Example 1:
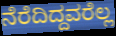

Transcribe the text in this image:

ನೆರೆದಿದ್ದವರೆಲ್ಲ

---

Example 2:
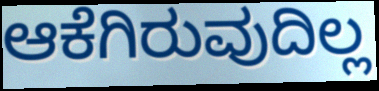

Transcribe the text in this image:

ಆಕೆಗಿರುವುದಿಲ್ಲ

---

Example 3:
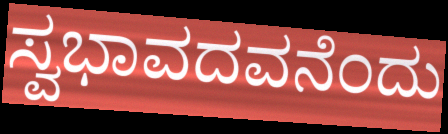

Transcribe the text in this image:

ಸ್ವಭಾವದವನೆಂದು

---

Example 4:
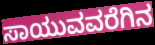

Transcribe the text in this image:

ಸಾಯುವವರೆಗಿನ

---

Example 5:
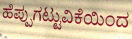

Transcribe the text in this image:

ಹೆಪ್ಪುಗಟ್ಟುವಿಕೆಯಿಂದ